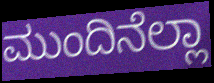
ಮುಂದಿನೆಲ್ಲಾ